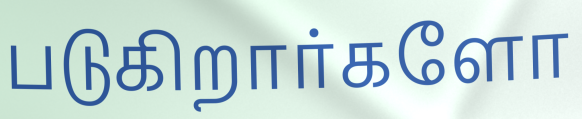
படுகிறார்களோ